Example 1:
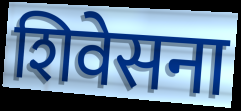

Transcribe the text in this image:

शिवेसना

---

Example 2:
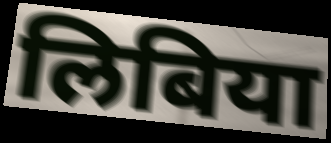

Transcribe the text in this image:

लिबिया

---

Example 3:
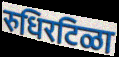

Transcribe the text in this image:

रुधिरटिळा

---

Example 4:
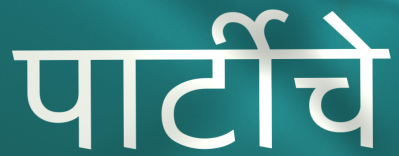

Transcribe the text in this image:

पार्टीचे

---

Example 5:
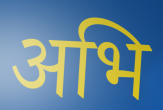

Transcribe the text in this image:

अभि